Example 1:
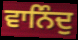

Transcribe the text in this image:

ਵਾਨਿੰਦੁ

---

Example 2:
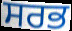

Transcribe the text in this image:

ਸਰਭ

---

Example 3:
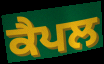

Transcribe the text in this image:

ਕੈਪਲ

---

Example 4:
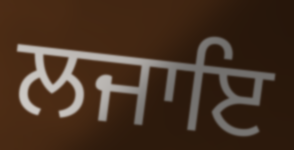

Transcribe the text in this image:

ਲਜਾਇ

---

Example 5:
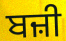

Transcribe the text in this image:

ਬਜ਼ੀ